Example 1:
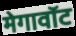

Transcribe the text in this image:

मेगावॉट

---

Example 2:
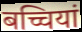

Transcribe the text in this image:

बच्चियां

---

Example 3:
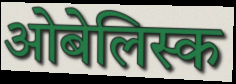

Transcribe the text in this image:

ओबेलिस्क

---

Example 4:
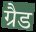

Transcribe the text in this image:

ग्रैड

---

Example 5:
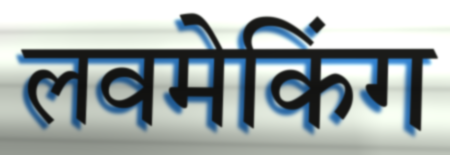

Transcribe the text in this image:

लवमेकिंग